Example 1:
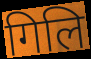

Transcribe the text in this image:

गिलि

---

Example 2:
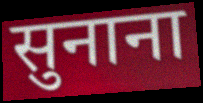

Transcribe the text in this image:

सुनाना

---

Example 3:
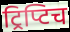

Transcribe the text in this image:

ट्रिप्टिच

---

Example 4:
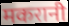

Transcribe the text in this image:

मकरानी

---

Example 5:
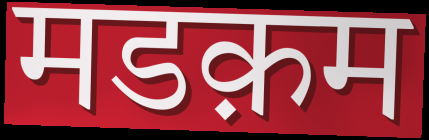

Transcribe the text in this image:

मडक़म